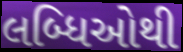
લબ્ધિઓથી